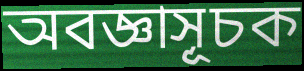
অবজ্ঞাসূচক